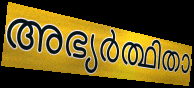
അഭ്യർത്ഥിതാ